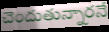
చెందుతున్నారనే